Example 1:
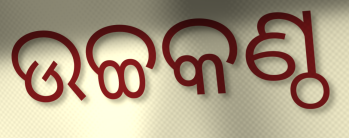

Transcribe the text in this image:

ଉଚ୍ଚକଣ୍ଠ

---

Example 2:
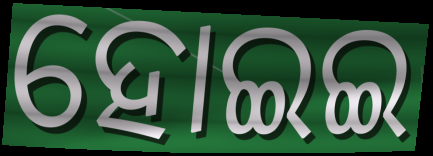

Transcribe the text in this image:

ହୋଇଇ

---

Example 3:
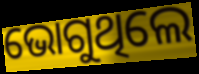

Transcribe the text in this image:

ଭୋଗୁଥିଲେ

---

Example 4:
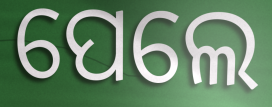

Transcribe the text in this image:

ପେଲେ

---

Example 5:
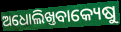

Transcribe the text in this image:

ଅଧୋଲିଖ୍ତବାକ୍ୟେଷୁ